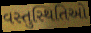
વસ્તુસ્થિતિઓ